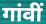
गांवीं